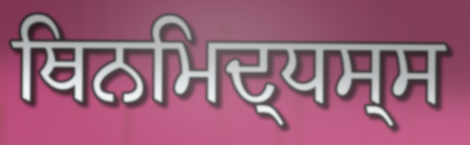
ਥਿਨਮਿਦ੍ਧਸ੍ਸ